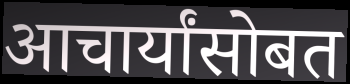
आचार्यांसोबत